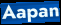
Aapan